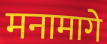
मनामागे